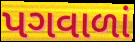
પગવાળાં